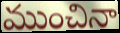
ముంచినా